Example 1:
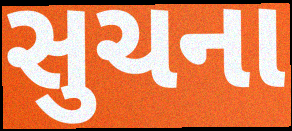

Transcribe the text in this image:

સુચના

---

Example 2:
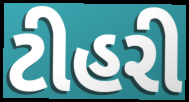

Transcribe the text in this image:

ટીહરી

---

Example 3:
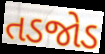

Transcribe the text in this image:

તડજોડ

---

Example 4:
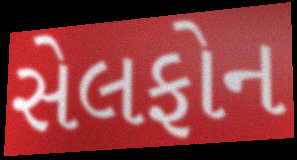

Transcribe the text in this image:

સેલફોન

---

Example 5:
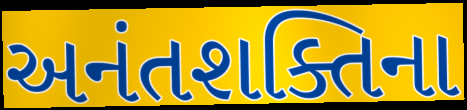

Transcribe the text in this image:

અનંતશક્તિના